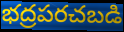
భద్రపరచబడి